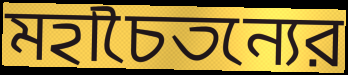
মহাচৈতন্যের